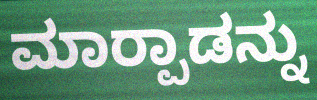
ಮಾರ‍್ಪಾಡನ್ನು